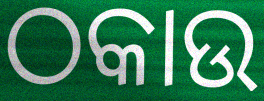
ଠକାଉ